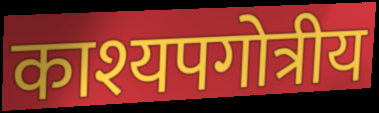
काश्यपगोत्रीय